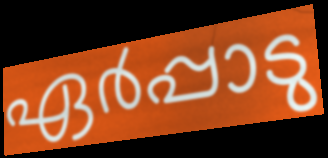
ഏർപ്പാടു